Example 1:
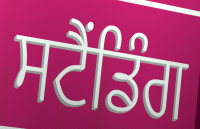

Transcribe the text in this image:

ਸਟੈਂਡਿੰਗ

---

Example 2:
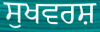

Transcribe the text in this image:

ਸੁਖਵਰਸ਼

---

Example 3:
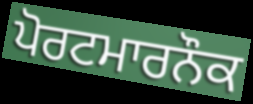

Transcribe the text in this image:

ਪੋਰਟਮਾਰਨੌਕ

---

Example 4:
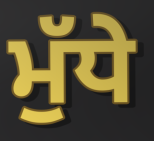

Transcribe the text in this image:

ਮੁੱਧੇ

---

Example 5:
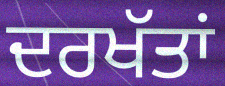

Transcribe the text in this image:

ਦਰਖੱਤਾਂ